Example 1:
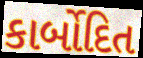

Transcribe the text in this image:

કાર્બોદિત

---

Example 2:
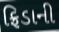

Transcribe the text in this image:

ફ્રિડાની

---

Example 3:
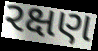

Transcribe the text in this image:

રક્ષણ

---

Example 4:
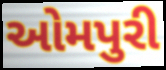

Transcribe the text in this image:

ઓમપુરી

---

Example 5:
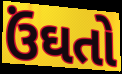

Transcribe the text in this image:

ઉંઘતો